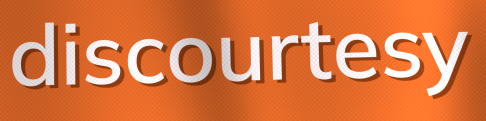
discourtesy